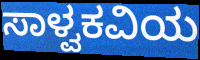
ಸಾಳ್ವಕವಿಯ